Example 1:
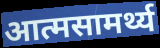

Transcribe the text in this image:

आत्मसामर्थ्य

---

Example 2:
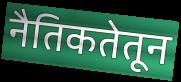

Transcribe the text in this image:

नैतिकतेतून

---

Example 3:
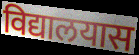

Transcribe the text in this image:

विद्यालयास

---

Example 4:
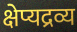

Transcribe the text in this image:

क्षेप्यद्रव्य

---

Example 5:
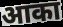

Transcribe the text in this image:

आका